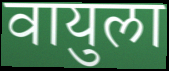
वायुला